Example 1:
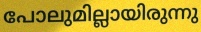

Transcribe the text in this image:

പോലുമില്ലായിരുന്നു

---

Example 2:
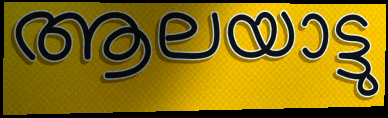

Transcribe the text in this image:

ആലയാട്ടു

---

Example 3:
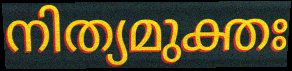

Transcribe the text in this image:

നിത്യമുക്തഃ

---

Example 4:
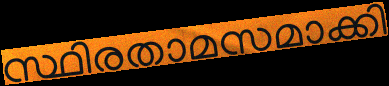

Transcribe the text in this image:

സ്ഥിരതാമസമാക്കി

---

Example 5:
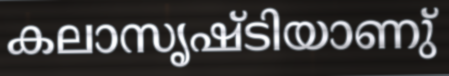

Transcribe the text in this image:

കലാസൃഷ്ടിയാണു്